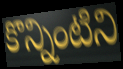
కొన్నింటిని